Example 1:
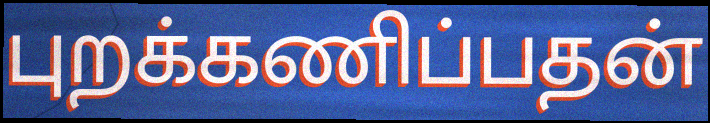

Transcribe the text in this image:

புறக்கணிப்பதன்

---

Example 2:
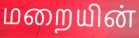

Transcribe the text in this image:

மறையின்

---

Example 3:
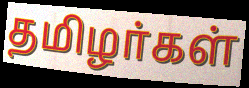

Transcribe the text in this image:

தமிழர்கள்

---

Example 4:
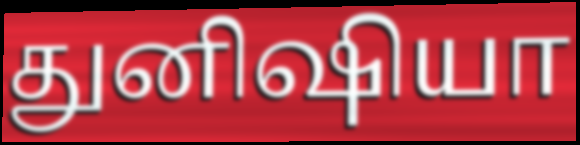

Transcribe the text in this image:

துனிஷியா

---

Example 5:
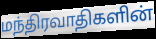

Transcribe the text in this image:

மந்திரவாதிகளின்